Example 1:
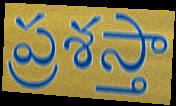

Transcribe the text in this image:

ప్రశస్తా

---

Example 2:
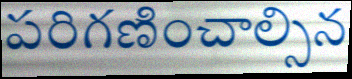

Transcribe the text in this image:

పరిగణించాల్సిన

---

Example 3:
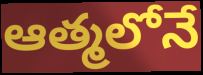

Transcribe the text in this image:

ఆత్మలోనే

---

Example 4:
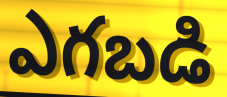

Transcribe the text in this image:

ఎగబడి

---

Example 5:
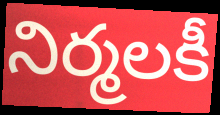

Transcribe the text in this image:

నిర్మలకీ